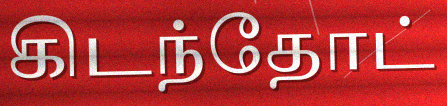
கிடந்தோட்